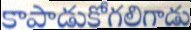
కాపాడుకోగలిగాడు